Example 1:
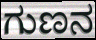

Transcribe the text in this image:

ಗುಣನ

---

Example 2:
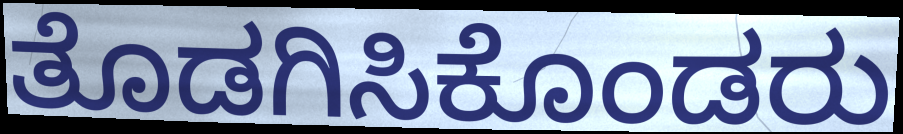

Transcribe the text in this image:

ತೊಡಗಿಸಿಕೊಂಡರು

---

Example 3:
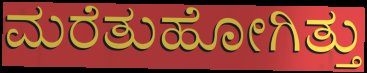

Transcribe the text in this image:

ಮರೆತುಹೋಗಿತ್ತು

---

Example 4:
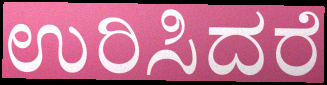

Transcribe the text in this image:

ಉರಿಸಿದರೆ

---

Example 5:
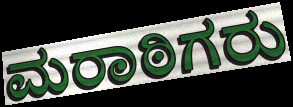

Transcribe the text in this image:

ಮರಾಠಿಗರು